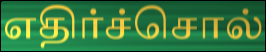
எதிர்ச்சொல்